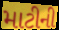
માટીની